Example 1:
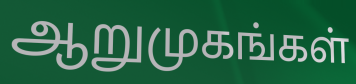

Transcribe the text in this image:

ஆறுமுகங்கள்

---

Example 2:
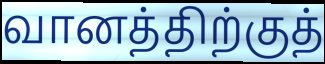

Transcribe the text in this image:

வானத்திற்குத்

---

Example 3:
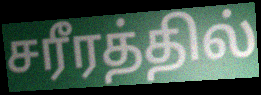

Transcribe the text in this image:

சரீரத்தில்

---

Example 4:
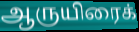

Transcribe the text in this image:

ஆருயிரைக்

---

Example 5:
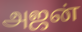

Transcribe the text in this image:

அஜன்